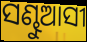
ସଣ୍ଢୁଆସୀ